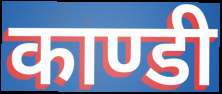
काण्डी